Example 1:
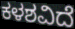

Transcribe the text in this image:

ಕಳಶವಿದೆ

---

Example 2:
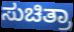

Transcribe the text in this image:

ಸುಚಿತ್ರಾ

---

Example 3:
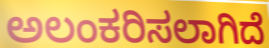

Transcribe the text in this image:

ಅಲಂಕರಿಸಲಾಗಿದೆ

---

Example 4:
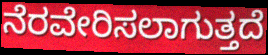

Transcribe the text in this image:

ನೆರವೇರಿಸಲಾಗುತ್ತದೆ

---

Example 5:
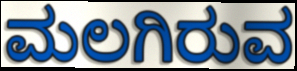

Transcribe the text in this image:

ಮಲಗಿರುವ